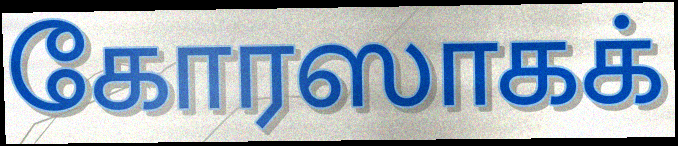
கோரஸாகக்